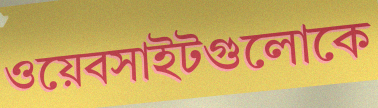
ওয়েবসাইটগুলোকে